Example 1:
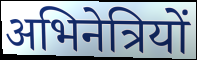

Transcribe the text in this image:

अभिनेत्रियों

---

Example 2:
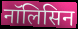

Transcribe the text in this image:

नॉलिसिन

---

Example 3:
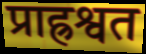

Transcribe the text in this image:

प्राह्रश्वत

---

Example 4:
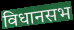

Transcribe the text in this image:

विधानसभ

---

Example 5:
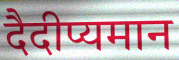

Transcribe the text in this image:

दैदीप्यमान